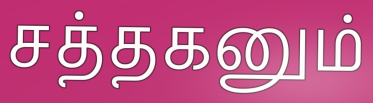
சத்தகனும்